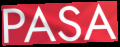
PASA